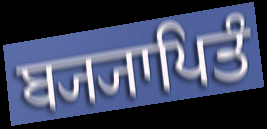
ਬ੍ਯ੍ਯਾਪਿਤੰ